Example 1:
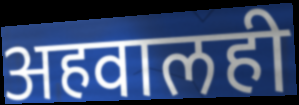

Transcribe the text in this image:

अहवालही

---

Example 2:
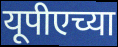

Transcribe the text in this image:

यूपीएच्या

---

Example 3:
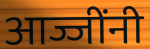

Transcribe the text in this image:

आज्जींनी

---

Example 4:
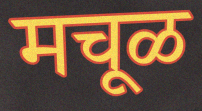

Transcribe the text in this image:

मचूळ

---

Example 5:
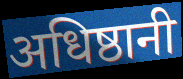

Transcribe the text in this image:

अधिष्ठानी